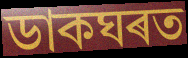
ডাকঘৰত